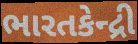
ભારતકેન્દ્રી